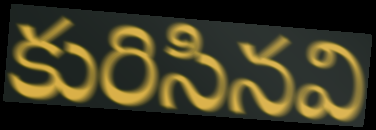
కురిసినవి